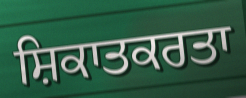
ਸ਼ਿਕਾਤਕਰਤਾ